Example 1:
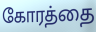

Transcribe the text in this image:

கோரத்தை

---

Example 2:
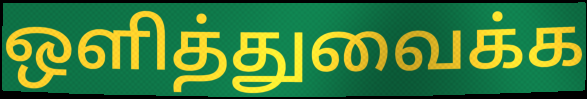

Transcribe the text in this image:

ஒளித்துவைக்க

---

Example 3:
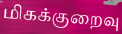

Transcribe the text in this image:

மிகக்குறைவு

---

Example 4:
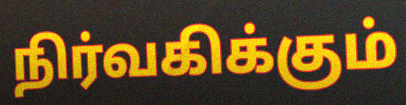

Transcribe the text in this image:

நிர்வகிக்கும்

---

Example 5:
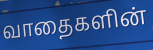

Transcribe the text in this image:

வாதைகளின்